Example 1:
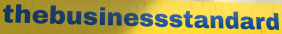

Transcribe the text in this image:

thebusinessstandard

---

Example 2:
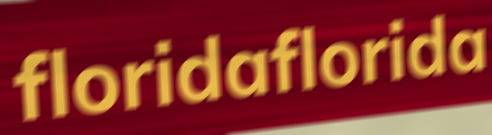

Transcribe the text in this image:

floridaflorida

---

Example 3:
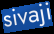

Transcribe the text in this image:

sivaji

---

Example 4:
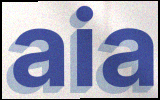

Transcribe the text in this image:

aia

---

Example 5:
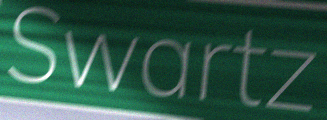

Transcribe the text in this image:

Swartz